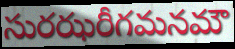
సురఝరీగమనమౌ